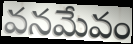
వనమేవం